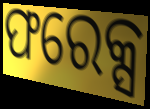
ଫରେକ୍ସ